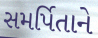
સમર્પિતાને